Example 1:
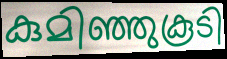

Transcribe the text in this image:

കുമിഞ്ഞുകൂടി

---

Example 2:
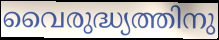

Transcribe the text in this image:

വൈരുദ്ധ്യത്തിനു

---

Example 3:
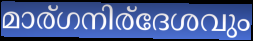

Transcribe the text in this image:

മാര്ഗനിര്ദേശവും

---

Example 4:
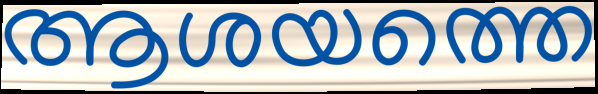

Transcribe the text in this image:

ആശയത്തെ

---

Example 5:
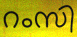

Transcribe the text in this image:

റംസി